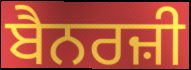
ਬੈਨਰਜ਼ੀ